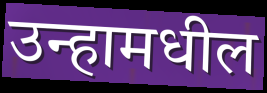
उन्हामधील